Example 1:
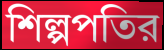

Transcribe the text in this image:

শিল্পপতির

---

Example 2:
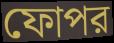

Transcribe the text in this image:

ফোপর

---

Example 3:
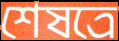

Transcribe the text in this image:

শেষত্রে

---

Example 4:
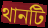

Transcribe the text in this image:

থানটি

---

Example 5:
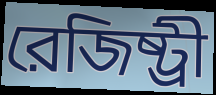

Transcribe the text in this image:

রেজিষ্ট্রী